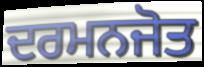
ਦਰਮਨਜੋਤ